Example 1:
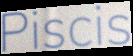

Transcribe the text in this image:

Piscis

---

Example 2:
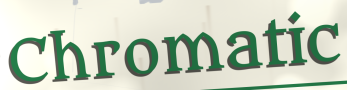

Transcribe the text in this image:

Chromatic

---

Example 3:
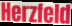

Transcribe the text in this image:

Herzfeld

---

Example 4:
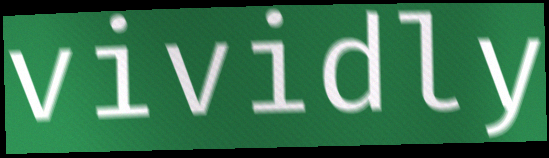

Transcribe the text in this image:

vividly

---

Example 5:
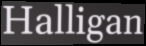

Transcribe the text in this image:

Halligan